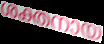
ശക്തനായ